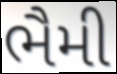
ભૈમી